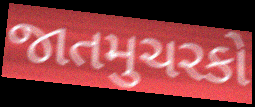
જાતમુચરકો